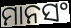
ମାନସଂ